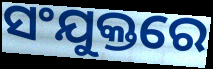
ସଂଯୁକ୍ତରେ